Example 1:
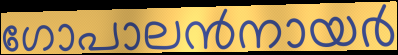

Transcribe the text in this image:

ഗോപാലൻനായർ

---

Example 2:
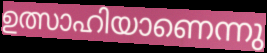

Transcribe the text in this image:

ഉത്സാഹിയാണെന്നു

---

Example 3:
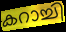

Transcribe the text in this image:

കറാച്ചി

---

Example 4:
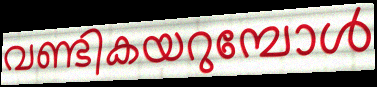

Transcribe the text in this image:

വണ്ടികയറുമ്പോൾ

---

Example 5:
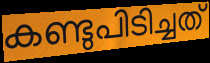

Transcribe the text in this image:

കണ്ടുപിടിച്ചത്